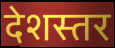
देशस्तर